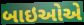
બાઇઓએ